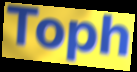
Toph